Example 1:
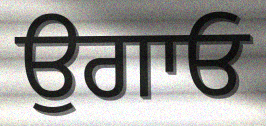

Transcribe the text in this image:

ਉਗਾਓ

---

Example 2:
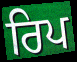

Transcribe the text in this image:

ਰਿਪ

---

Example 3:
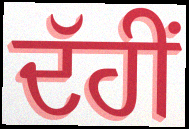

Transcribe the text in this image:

ਦੱਹੀਂ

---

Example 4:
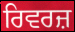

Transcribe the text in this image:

ਰਿਵਰਜ਼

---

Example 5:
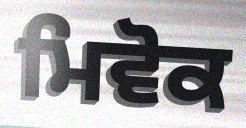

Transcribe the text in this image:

ਮਿਵੋਕ